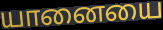
யானையை